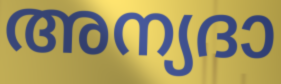
അന്യദാ